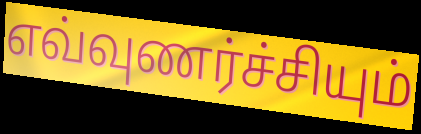
எவ்வுணர்ச்சியும்